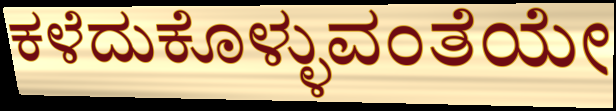
ಕಳೆದುಕೊಳ್ಳುವಂತೆಯೇ